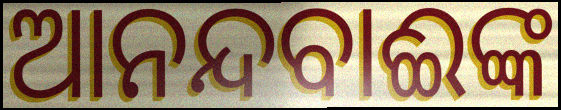
ଆନନ୍ଦବାଈଙ୍କ